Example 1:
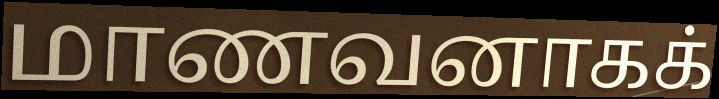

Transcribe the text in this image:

மாணவனாகக்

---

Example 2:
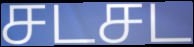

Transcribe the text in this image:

சடசட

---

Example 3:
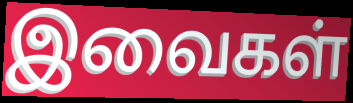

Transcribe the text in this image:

இவைகள்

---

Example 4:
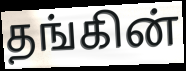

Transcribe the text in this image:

தங்கின்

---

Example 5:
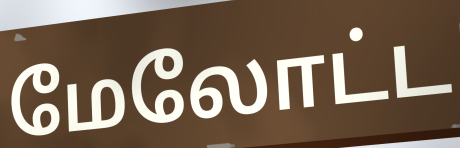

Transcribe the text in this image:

மேலோட்ட